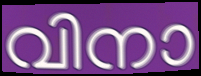
വിനാ